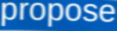
propose